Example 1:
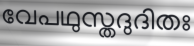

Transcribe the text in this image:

വേപഥുസ്തദുദിതഃ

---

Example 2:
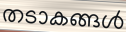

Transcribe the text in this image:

തടാകങ്ങൾ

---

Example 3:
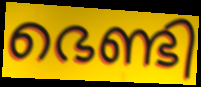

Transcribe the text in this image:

ഭെണ്ടി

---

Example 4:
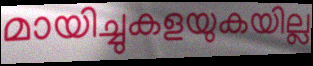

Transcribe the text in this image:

മായിച്ചുകളയുകയില്ല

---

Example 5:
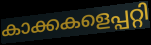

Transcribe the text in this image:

കാക്കകളെപ്പറ്റി